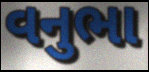
વનુભા